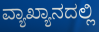
ವ್ಯಾಖ್ಯಾನದಲ್ಲಿ